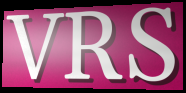
VRS